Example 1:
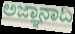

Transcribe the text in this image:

ಅಜ್ಞಾನಾದಿ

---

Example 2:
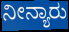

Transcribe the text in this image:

ನೀನ್ಯಾರು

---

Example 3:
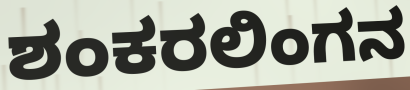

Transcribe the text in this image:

ಶಂಕರಲಿಂಗನ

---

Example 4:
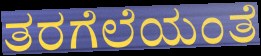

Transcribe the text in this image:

ತರಗೆಲೆಯಂತೆ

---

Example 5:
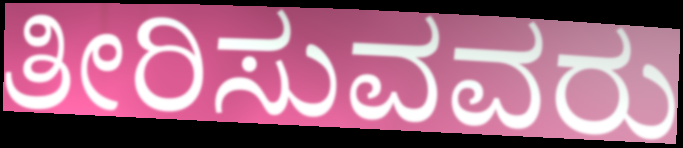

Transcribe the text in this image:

ತೀರಿಸುವವರು